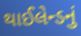
થાઈલેન્ડનું